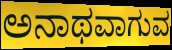
ಅನಾಥವಾಗುವ